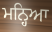
ਮਨ੍ਹਿਆ